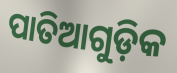
ପାତିଆଗୁଡ଼ିକ